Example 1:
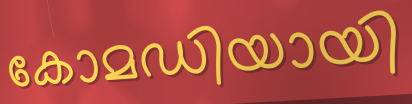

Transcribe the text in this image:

കോമഡിയായി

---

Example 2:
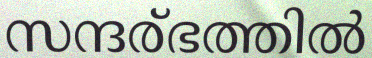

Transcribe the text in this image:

സന്ദര്ഭത്തിൽ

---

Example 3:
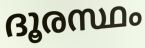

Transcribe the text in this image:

ദൂരസ്ഥം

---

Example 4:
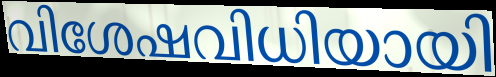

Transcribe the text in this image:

വിശേഷവിധിയായി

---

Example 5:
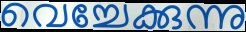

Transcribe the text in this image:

വെച്ചേക്കുന്നു